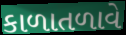
કાળાતળાવે